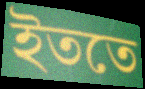
ইততে